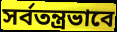
সর্বতন্ত্রভাবে